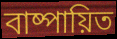
বাষ্পায়িত